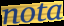
nota